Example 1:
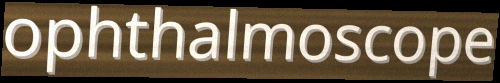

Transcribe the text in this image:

ophthalmoscope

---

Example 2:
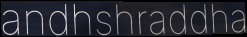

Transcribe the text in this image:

andhshraddha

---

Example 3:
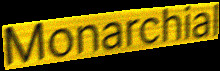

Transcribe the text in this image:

Monarchial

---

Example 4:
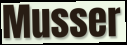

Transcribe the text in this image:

Musser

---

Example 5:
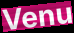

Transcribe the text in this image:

Venu